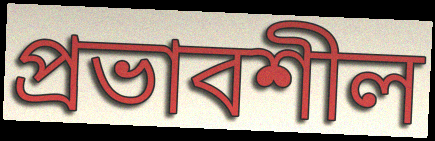
প্রভাবশীল